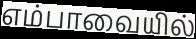
எம்பாவையில்